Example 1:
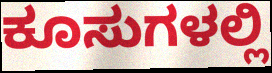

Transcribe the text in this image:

ಕೂಸುಗಳಲ್ಲಿ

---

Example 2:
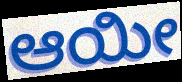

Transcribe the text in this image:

ಆಯೀ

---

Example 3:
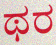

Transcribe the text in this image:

ಥರ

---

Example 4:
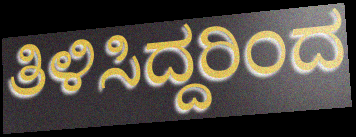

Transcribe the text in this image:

ತಿಳಿಸಿದ್ದರಿಂದ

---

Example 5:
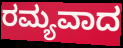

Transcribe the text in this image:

ರಮ್ಯವಾದ